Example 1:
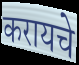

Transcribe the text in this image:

करायचे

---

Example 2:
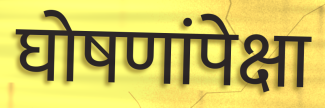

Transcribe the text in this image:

घोषणांपेक्षा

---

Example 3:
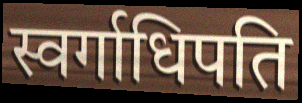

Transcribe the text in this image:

स्वर्गाधिपति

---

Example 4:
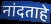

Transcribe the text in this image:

नांदताहे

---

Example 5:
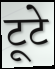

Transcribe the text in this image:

टूटे